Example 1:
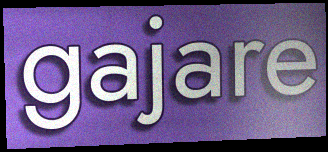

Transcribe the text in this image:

gajare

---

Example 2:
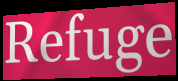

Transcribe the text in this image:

Refuge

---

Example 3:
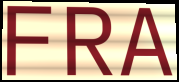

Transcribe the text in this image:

FRA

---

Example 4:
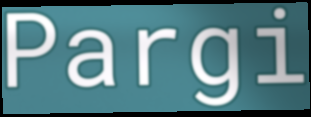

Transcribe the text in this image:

Pargi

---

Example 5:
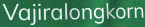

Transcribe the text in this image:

Vajiralongkorn